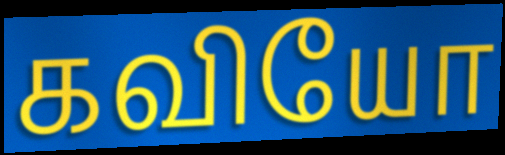
கவியோ